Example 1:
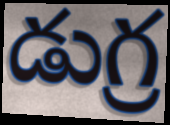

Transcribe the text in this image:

డుగ్ర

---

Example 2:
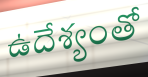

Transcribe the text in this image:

ఉదేశ్యంతో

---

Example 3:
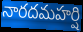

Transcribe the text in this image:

నారదమహర్షి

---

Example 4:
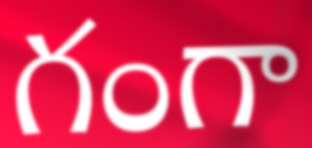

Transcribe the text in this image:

గంగా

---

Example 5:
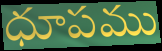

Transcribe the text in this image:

ధూపము